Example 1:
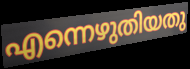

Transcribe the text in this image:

എന്നെഴുതിയതു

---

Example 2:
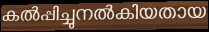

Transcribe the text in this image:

കൽപ്പിച്ചുനൽകിയതായ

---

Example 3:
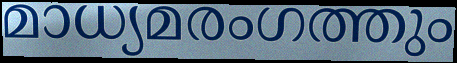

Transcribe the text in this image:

മാധ്യമരംഗത്തും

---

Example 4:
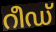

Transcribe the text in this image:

റീഡ്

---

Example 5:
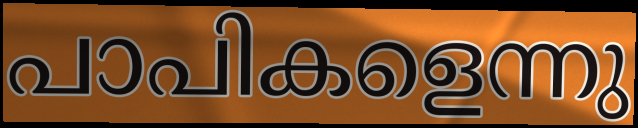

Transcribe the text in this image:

പാപികളെന്നു